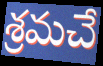
శ్రమచే